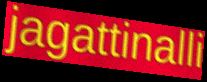
jagattinalli